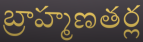
బ్రాహ్మణతర్ల